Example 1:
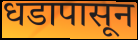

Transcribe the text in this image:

धडापासून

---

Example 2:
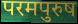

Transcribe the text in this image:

परमपुरुष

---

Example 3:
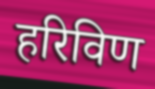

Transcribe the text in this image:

हरिविण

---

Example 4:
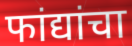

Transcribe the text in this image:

फांद्यांचा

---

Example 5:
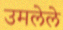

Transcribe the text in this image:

उमलेले